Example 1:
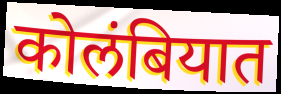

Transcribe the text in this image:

कोलंबियात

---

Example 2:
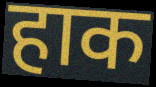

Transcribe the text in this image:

हाक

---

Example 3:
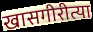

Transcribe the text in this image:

खासगीरीत्या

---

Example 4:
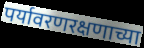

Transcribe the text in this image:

पर्यावरणरक्षणाच्या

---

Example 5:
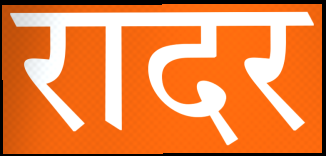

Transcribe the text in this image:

रादर